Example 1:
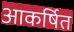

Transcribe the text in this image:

आकर्षित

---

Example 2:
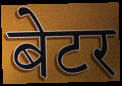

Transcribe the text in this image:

बेटर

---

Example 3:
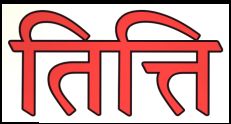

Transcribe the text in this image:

तित्ति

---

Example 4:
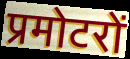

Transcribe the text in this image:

प्रमोटरों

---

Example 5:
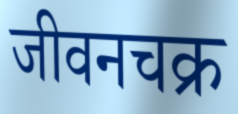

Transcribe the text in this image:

जीवनचक्र